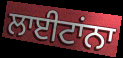
ਲਾਈਟਾਂਨਾ